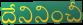
దేనినించీ